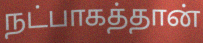
நட்பாகத்தான்